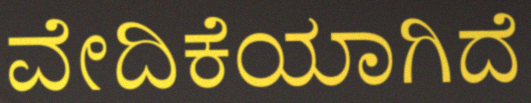
ವೇದಿಕೆಯಾಗಿದೆ